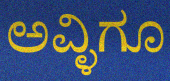
ಅವ್ಳಿಗೂ